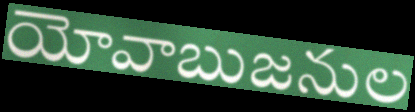
యోవాబుజనుల